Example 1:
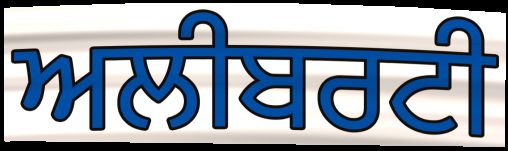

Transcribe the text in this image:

ਅਲੀਬਰਟੀ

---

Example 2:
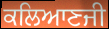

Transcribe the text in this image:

ਕਲਿਆਣਜੀ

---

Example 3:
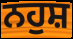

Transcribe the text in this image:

ਨਹੁਸ਼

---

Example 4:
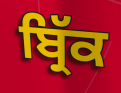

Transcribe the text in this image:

ਬ੍ਰਿੱਕ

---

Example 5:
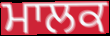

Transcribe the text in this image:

ਮਾਲਕ